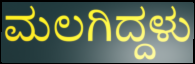
ಮಲಗಿದ್ದಳು